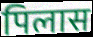
पिलास